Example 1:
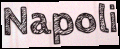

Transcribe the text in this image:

Napoli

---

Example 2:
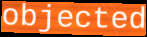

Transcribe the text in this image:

objected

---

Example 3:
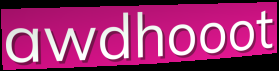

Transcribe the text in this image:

awdhooot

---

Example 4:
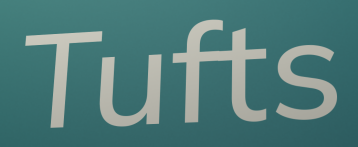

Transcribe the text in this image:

Tufts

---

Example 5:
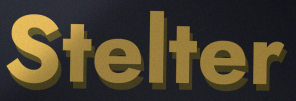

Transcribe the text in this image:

Stelter